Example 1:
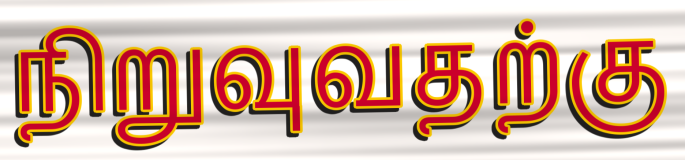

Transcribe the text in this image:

நிறுவுவதற்கு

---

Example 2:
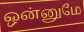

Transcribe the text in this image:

ஒன்னுமே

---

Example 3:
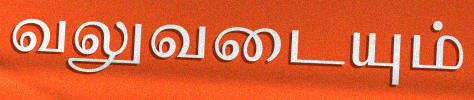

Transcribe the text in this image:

வலுவடையும்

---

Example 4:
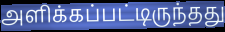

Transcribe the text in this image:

அளிக்கப்பட்டிருந்தது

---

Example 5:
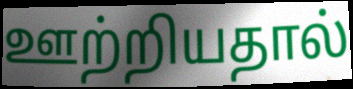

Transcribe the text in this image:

ஊற்றியதால்